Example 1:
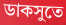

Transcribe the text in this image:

ডাকসুতে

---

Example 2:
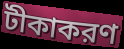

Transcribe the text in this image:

টীকাকরণ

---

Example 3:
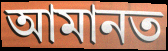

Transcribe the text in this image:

আমানত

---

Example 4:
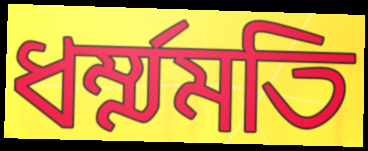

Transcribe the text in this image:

ধর্ম্মমতি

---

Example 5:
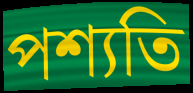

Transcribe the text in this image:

পশ্যতি